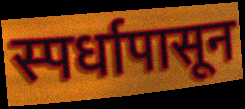
स्पर्धापासून